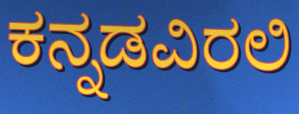
ಕನ್ನಡವಿರಲಿ